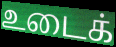
உடைக்